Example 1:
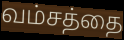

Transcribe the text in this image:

வம்சத்தை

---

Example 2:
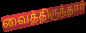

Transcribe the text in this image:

வைத்திருந்தார்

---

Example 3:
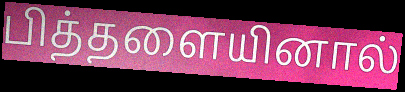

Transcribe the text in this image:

பித்தளையினால்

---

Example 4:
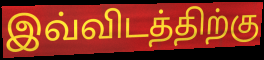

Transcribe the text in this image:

இவ்விடத்திற்கு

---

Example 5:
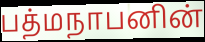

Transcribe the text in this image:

பத்மநாபனின்